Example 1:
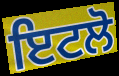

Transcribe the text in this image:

ਇਟਲੋ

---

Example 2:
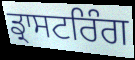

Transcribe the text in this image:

ਡ੍ਰਾਸਟਰਿੰਗ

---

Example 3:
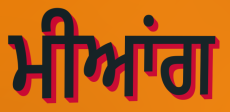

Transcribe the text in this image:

ਮੀਆਂਗ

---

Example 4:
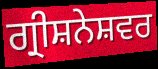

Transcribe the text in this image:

ਗ੍ਰੀਸ਼ਨੇਸ਼ਵਰ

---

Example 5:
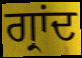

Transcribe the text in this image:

ਗ੍ਰਾਂਦ